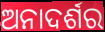
ଅନାଦର୍ଶର